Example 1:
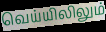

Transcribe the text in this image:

வெய்யிலிலும்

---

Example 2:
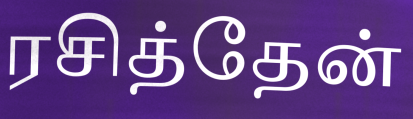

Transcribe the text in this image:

ரசித்தேன்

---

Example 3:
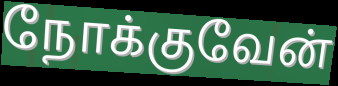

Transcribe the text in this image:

நோக்குவேன்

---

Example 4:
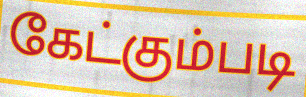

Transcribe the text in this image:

கேட்கும்படி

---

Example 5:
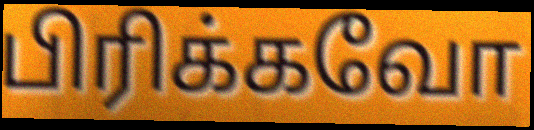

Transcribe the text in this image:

பிரிக்கவோ